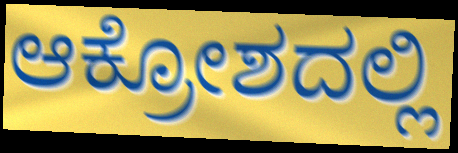
ಆಕ್ರೋಶದಲ್ಲಿ